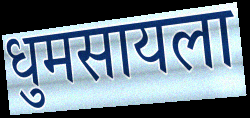
धुमसायला